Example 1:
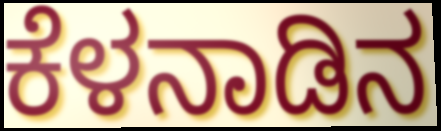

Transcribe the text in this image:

ಕೆಳನಾಡಿನ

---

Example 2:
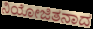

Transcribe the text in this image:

ನಿಯೋಜಿತನಾದ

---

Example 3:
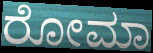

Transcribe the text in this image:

ರೋಮಾ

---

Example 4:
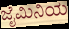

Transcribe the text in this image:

ಜೈಮಿನಿಯ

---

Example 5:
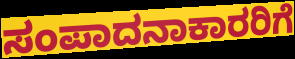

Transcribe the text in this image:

ಸಂಪಾದನಾಕಾರರಿಗೆ